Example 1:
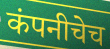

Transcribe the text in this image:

कंपनीचेच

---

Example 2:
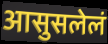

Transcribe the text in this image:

आसुसलेलं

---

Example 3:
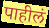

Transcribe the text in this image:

पाहीलं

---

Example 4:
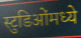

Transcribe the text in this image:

स्टुडिओंमध्ये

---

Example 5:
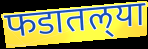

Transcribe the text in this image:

फडातल्या